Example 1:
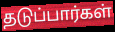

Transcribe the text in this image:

தடுப்பார்கள்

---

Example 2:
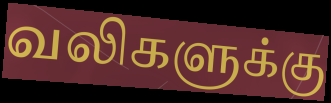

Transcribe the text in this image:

வலிகளுக்கு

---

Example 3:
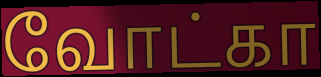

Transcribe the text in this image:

வோட்கா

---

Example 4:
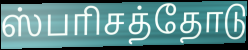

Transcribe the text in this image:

ஸ்பரிசத்தோடு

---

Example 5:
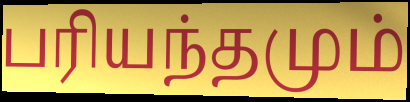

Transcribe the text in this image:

பரியந்தமும்